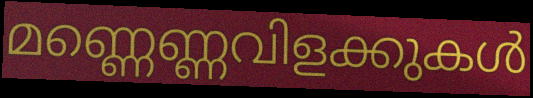
മണ്ണെണ്ണവിളക്കുകൾ